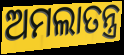
ଅମଲାତନ୍ତ୍ର